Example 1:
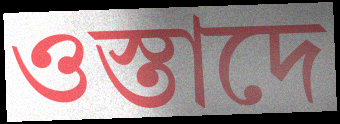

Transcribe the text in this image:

ওস্তাদে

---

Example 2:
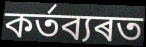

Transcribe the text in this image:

কৰ্তব্যৰত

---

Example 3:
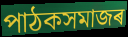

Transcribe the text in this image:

পাঠকসমাজৰ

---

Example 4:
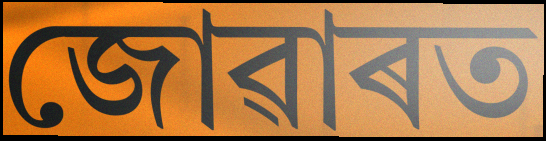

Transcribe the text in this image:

জোৱাৰত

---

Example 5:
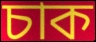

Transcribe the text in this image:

চাক